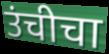
उंचीचा